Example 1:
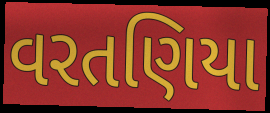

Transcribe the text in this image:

વરતણિયા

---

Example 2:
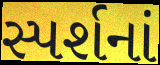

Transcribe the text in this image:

સ્પર્શનાં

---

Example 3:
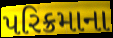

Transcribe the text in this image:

પરિક્રમાના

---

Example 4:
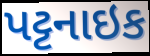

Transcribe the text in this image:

પટ્ટનાઇક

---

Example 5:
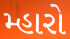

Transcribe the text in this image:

મ્હારો